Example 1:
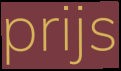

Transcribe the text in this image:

prijs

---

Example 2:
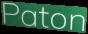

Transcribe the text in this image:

Paton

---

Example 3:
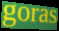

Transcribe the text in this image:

goras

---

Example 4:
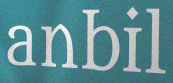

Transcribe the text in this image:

anbil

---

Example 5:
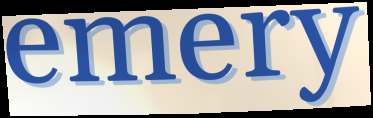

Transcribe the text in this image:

emery